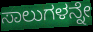
ಸಾಲುಗಳನ್ನೇ